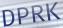
DPRK